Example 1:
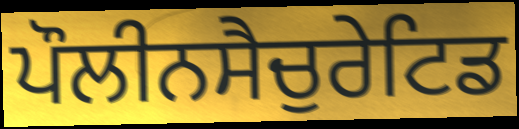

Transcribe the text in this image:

ਪੌਲੀਨਸੈਚੁਰੇਟਿਡ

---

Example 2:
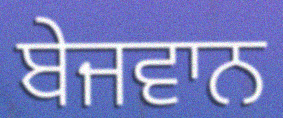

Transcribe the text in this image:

ਬੇਜਵਾਨ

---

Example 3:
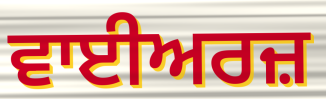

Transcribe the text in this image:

ਵਾਈਅਰਜ਼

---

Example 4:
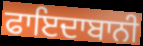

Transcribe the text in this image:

ਫਾਇਦਾਬਾਨੀ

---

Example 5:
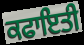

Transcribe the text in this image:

ਕਫਾਇਤੀ